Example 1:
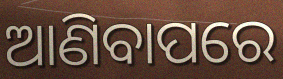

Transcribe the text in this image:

ଆଣିବାପରେ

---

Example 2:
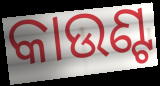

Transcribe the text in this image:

କାଉଣ୍ଟ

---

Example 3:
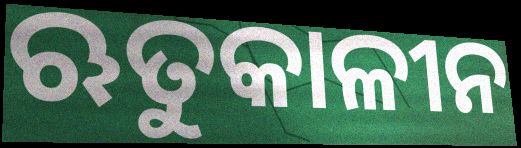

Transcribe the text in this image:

ଋତୁକାଳୀନ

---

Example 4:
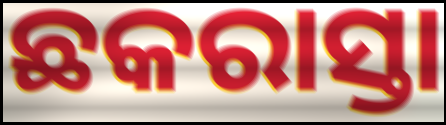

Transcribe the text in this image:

ଛକରାସ୍ତା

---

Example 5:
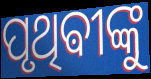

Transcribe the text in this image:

ପୃଥିଵୀଙ୍କୁ